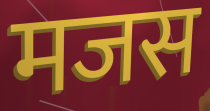
मजस